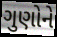
ગુણોને